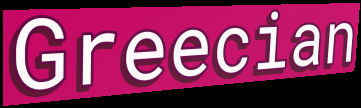
Greecian